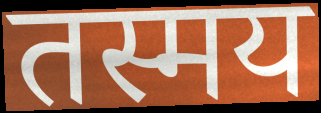
तस्मय